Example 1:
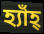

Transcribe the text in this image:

হ্যাঁহ্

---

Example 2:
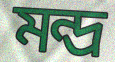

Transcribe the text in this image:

মন্দ্র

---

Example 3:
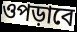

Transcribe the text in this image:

ওপড়াবে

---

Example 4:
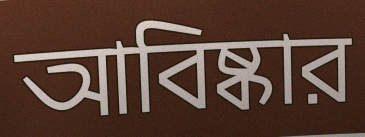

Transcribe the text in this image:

আবিষ্কার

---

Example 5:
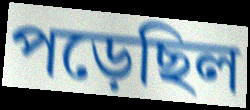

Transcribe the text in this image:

পড়েছিল